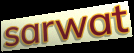
sarwat